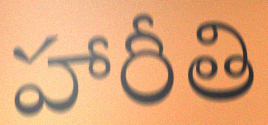
హారీతి